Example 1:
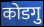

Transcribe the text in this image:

कोडगु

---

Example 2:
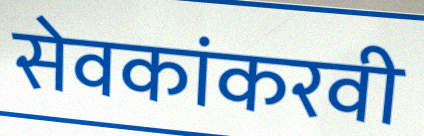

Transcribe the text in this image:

सेवकांकरवी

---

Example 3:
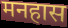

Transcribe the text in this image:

मनहास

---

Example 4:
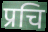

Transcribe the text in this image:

प्रचि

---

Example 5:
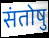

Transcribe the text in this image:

संतोषु